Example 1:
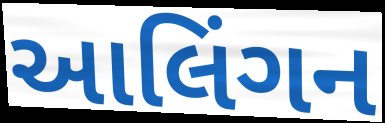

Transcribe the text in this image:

આલિંગન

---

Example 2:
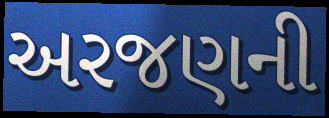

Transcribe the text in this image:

અરજણની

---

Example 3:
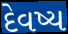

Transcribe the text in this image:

દેવષ્ય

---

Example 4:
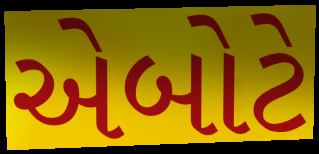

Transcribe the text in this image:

એબોટે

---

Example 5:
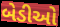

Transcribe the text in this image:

બેડીઓ